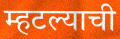
म्हटल्याची